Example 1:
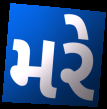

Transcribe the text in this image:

મરે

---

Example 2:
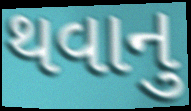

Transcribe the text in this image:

થવાનુ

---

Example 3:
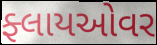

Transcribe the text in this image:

ફ્લાયઓવર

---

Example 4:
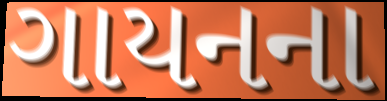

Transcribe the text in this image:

ગાયનના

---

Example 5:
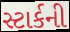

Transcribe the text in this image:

સ્ટાર્કની